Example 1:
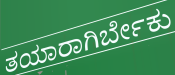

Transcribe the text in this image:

ತಯಾರಾಗಿರ್ಬೇಕು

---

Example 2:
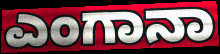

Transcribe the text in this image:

ಎಂಗಾನಾ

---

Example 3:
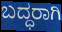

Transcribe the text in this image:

ಬದ್ಧರಾಗಿ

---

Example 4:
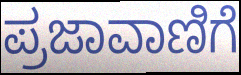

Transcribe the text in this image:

ಪ್ರಜಾವಾಣಿಗೆ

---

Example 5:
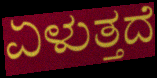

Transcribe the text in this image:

ಏಳುತ್ತದೆ